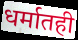
धर्मातही